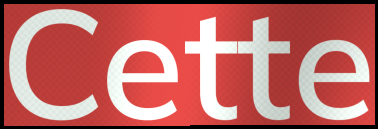
Cette